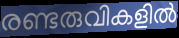
രണ്ടരുവികളിൽ